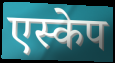
एस्केप